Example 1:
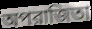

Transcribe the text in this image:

অপরাজিতা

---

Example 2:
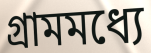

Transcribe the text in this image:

গ্রামমধ্যে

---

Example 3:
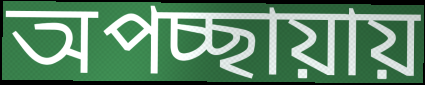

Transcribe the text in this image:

অপচ্ছায়ায়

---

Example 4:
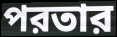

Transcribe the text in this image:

পরতার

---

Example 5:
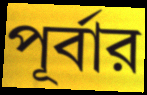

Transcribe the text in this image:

পূর্বার